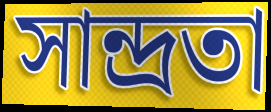
সান্দ্রতা